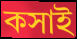
কসাই